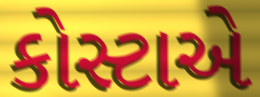
કોસ્ટાએ